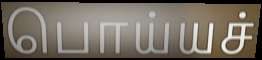
பொய்யச்